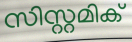
സിസ്റ്റമിക്